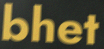
bhet